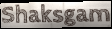
Shaksgam